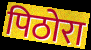
पिठोरा